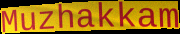
Muzhakkam